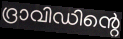
ദ്രാവിഡിന്റെ